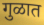
गुळात